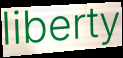
liberty